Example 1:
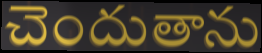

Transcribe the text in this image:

చెందుతాను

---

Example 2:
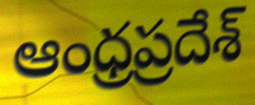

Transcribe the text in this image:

ఆంధ్రప్రదేశ్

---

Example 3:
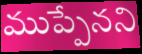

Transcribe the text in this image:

ముప్పేనని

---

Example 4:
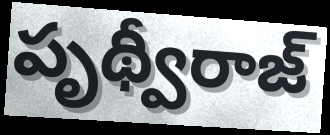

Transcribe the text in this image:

పృథ్వీరాజ్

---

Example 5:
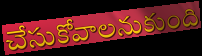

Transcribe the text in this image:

చేసుకోవాలనుకుంది